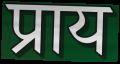
प्राय